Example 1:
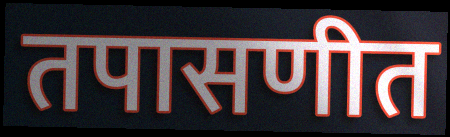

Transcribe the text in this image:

तपासणीत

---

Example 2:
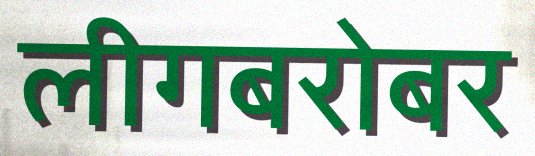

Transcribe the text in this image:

लीगबरोबर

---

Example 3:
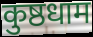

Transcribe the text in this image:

कुष्ठधाम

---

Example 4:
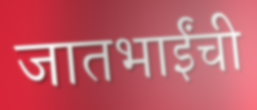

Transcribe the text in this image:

जातभाईंची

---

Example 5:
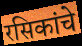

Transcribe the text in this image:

रसिकांचे